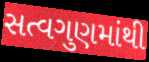
સત્વગુણમાંથી